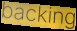
backing